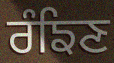
ਰੰਙਿਣ